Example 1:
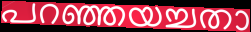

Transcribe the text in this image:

പറഞ്ഞയച്ചതാ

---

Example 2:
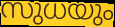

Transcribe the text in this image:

സുധയും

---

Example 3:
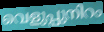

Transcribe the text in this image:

വെളുപ്പുനിറം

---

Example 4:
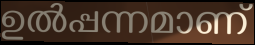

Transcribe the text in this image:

ഉൽപ്പന്നമാണ്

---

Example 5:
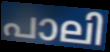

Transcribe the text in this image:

പാലി